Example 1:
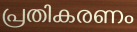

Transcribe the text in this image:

പ്രതികരണം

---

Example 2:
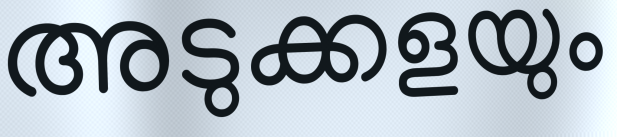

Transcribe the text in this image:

അടുക്കളയും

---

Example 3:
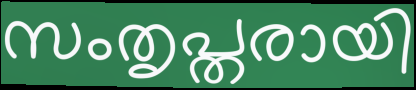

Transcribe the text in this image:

സംതൃപ്തരായി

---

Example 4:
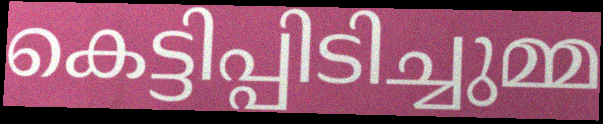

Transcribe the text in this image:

കെട്ടിപ്പിടിച്ചുമ്മ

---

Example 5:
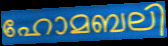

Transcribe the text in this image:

ഹോമബലി